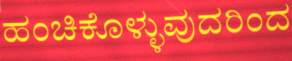
ಹಂಚಿಕೊಳ್ಳುವುದರಿಂದ